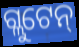
ଗ୍ଲୁଟେନ୍